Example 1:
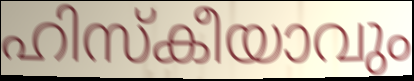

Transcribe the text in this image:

ഹിസ്കീയാവും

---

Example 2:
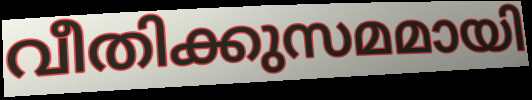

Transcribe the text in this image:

വീതിക്കുസമമായി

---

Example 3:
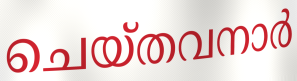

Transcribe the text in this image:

ചെയ്തവനാർ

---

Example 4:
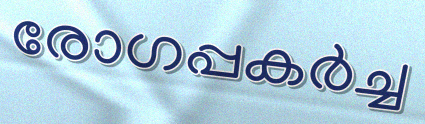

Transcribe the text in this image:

രോഗപ്പകർച്ച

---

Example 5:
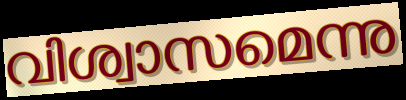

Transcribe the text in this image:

വിശ്വാസമെന്നു